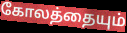
கோலத்தையும்